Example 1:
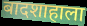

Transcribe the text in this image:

बादशाहाला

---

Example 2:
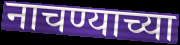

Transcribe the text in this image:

नाचण्याच्या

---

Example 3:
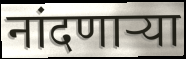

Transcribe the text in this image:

नांदणाऱ्या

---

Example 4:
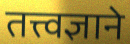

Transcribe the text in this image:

तत्त्वज्ञाने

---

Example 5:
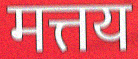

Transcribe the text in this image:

मत्तय